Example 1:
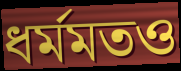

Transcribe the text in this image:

ধর্মমতও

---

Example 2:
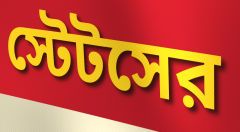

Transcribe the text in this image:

স্টেটসের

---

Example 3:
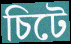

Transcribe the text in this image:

চিটে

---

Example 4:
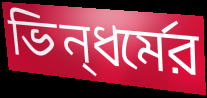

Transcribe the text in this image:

ভিন্‌ধর্মের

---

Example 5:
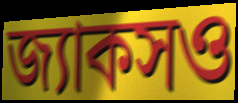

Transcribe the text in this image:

জ্যাকসও